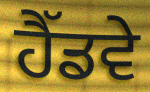
ਹੈੱਡਵੇ